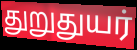
துறுதுயர்